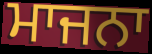
ਮਾਜਨਾ